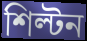
শিল্টন